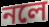
নলে